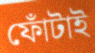
ফোঁটাই